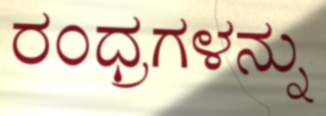
ರಂಧ್ರಗಳನ್ನು